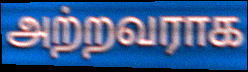
அற்றவராக